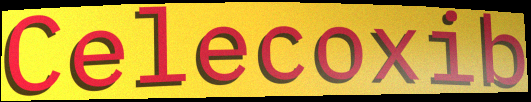
Celecoxib